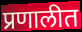
प्रणालीत